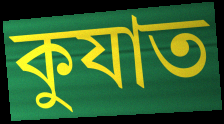
কুযাত